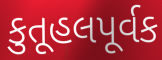
કુતૂહલપૂર્વક